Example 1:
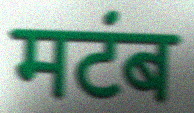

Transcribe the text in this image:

मटंब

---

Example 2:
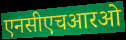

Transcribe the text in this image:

एनसीएचआरओ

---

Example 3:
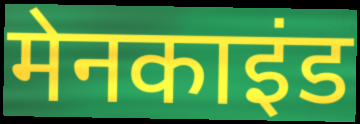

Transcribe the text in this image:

मेनकाइंड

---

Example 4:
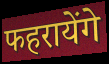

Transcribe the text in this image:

फहरायेंगे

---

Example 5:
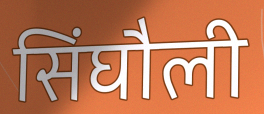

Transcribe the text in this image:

सिंघौली